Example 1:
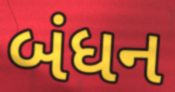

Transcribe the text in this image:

બંધન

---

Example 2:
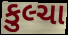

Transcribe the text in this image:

કુલ્ચા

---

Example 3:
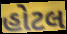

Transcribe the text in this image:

હોટલ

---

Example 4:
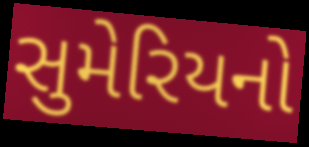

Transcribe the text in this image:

સુમેરિયનો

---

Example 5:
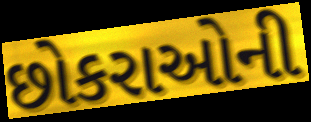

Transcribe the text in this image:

છોકરાઓની